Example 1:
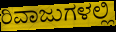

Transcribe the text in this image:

ರಿವಾಜುಗಳಲ್ಲಿ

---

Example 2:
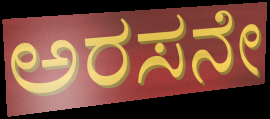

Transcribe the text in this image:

ಅರಸನೇ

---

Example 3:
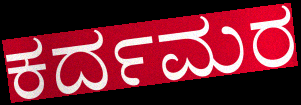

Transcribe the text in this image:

ಕರ್ದಮರ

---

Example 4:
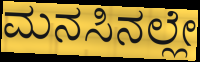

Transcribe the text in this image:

ಮನಸಿನಲ್ಲೇ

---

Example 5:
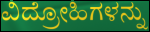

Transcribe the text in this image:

ವಿದ್ರೋಹಿಗಳನ್ನು